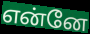
என்னே